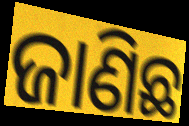
ଜାଣିଛ